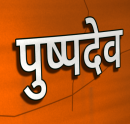
पुष्पदेव